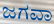
ಜಗವಾ